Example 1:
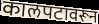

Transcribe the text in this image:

कालपटावरून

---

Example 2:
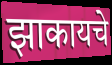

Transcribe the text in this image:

झाकायचे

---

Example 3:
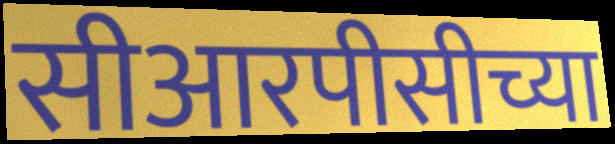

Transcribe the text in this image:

सीआरपीसीच्या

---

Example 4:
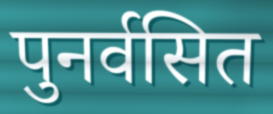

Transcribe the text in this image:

पुनर्वसित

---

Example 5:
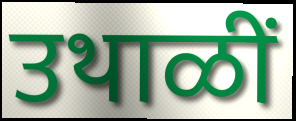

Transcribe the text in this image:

उथाळीं